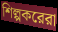
শিল্পকরেরা